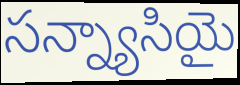
సన్న్యాసియై